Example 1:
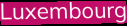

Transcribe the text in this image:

Luxembourg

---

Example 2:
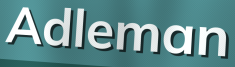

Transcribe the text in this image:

Adleman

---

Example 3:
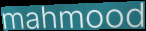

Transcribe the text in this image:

mahmood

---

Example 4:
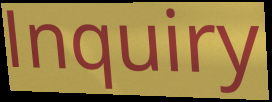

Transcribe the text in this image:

Inquiry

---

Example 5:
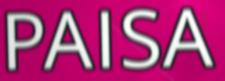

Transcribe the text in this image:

PAISA